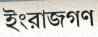
ইংরাজগণ